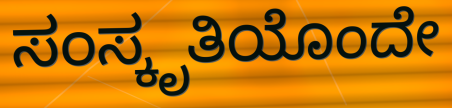
ಸಂಸ್ಕೃತಿಯೊಂದೇ